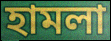
হামলা